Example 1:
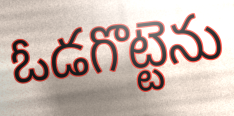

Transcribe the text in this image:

ఓడగొట్టెను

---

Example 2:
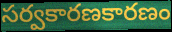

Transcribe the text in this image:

సర్వకారణకారణం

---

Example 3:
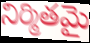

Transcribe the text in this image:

నిర్మితమై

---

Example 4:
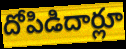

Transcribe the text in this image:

దోపిడిదార్లూ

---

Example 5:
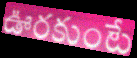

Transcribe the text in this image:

ఊరకుంటే